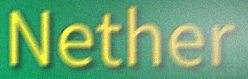
Nether